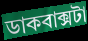
ডাকবাক্সটা